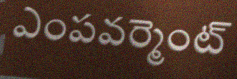
ఎంపవర్మెంట్